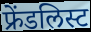
फ्रेंडलिस्ट